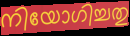
നിയോഗിച്ചതു